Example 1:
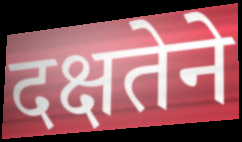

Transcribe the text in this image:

दक्षतेने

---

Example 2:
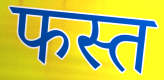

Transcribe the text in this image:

फस्त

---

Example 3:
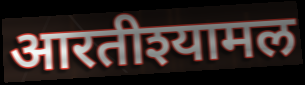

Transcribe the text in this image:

आरतीश्यामल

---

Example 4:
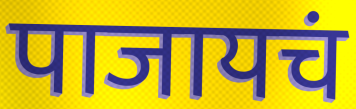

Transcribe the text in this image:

पाजायचं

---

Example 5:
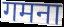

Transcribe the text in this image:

गमना